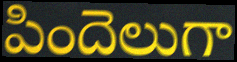
పిందెలుగా